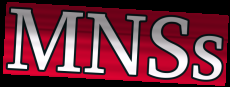
MNSs